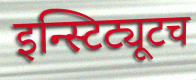
इन्स्टिट्यूटच